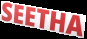
SEETHA